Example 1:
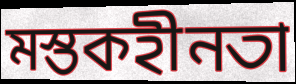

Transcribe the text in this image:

মস্তকহীনতা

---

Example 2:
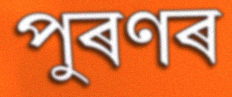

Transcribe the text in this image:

পুৰণৰ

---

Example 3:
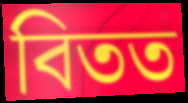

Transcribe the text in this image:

বিতত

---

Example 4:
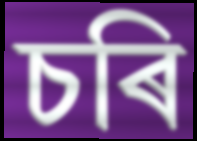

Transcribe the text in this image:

চৰি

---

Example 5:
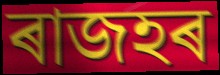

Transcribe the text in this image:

ৰাজহৰ